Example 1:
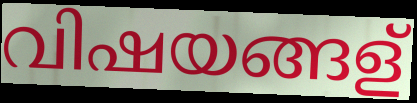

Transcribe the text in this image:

വിഷയങ്ങള്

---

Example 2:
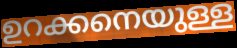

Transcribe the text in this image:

ഉറക്കനെയുള്ള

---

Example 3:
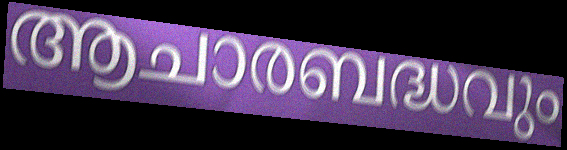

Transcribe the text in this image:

ആചാരബദ്ധവും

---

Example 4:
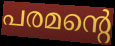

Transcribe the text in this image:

പരമന്റെ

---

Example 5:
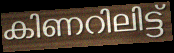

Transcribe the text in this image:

കിണറിലിട്ട്